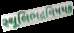
સ્થૂલિભદ્રવિષયક